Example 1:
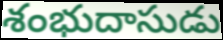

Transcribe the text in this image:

శంభుదాసుడు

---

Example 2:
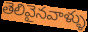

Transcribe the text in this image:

తెలివైనవాళ్ళు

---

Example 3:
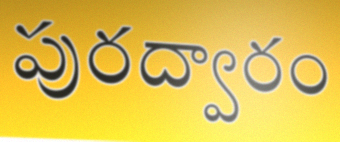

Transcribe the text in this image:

పురద్వారం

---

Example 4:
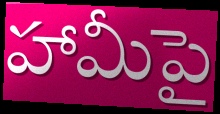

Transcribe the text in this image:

హామీపై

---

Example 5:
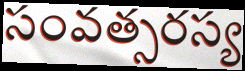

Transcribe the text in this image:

సంవత్సరస్య